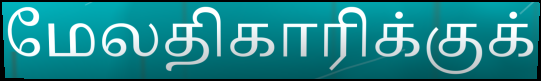
மேலதிகாரிக்குக்